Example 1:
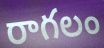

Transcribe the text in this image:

రాగలం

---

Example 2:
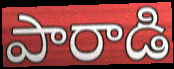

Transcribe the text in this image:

పారాడి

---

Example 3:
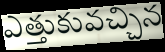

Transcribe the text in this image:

ఎత్తుకువచ్చిన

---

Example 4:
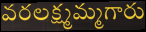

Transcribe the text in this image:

వరలక్ష్మమ్మగారు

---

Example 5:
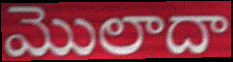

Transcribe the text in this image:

మొలాదా